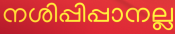
നശിപ്പിപ്പാനല്ല